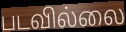
படவில்லை